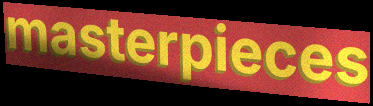
masterpieces